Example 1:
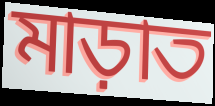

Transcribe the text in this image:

মাড়াত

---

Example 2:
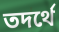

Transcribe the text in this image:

তদর্থে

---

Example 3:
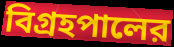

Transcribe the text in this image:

বিগ্রহপালের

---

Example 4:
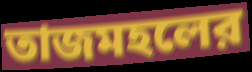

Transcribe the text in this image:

তাজমহলের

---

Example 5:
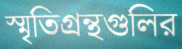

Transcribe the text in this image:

স্মৃতিগ্রন্থগুলির